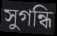
সুগন্ধি